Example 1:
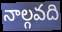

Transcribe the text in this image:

నాల్గవది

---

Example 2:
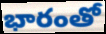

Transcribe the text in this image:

భారంతో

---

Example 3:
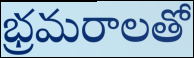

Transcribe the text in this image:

భ్రమరాలతో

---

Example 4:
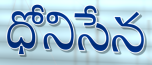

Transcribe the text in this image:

ధోనిసేన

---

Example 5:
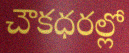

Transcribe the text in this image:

చౌకధరల్లో